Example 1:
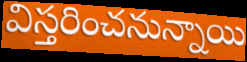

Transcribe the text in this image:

విస్తరించనున్నాయి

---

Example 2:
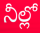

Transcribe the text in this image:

నీల్లో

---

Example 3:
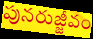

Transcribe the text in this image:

పునరుజ్జీవం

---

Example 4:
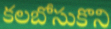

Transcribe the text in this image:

కలబోసుకొని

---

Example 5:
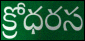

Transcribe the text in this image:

క్రోధరస